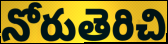
నోరుతెరిచి